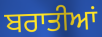
ਬਰਾਤੀਆਂ